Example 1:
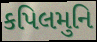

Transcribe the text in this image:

કપિલમુનિ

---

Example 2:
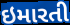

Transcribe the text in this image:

ઇમારતી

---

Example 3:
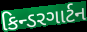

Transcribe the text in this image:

કિન્ડરગાર્ટન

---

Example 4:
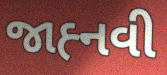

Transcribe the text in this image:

જાહ્‍નવી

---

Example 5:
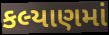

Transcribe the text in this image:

કલ્યાણમાં